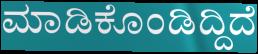
ಮಾಡಿಕೊಂಡಿದ್ದಿದೆ